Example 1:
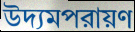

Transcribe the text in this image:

উদ্যমপরায়ণ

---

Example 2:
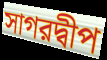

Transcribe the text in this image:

সাগরদ্বীপ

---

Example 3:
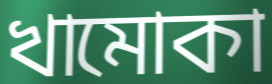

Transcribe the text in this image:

খামোকা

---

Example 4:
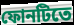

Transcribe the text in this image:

ফোনটিতে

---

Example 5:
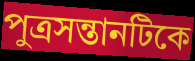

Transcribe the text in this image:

পুত্রসন্তানটিকে